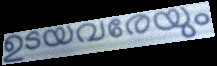
ഉടയവരേയും